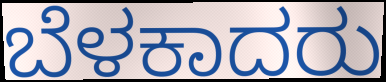
ಬೆಳಕಾದರು